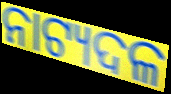
ନାଟ୍ୟଦଳ